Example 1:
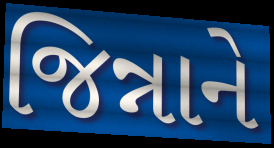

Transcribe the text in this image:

જિન્નાને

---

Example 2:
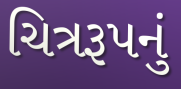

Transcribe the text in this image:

ચિત્રરૂપનું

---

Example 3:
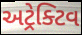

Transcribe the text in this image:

અટ્રેક્ટિવ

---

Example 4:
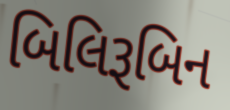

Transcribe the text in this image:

બિલિરૂબિન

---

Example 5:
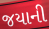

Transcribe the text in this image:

જયાની